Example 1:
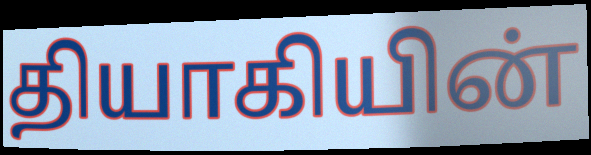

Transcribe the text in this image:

தியாகியின்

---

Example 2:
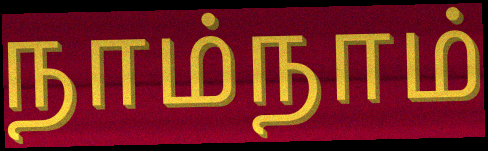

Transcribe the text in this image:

நாம்நாம்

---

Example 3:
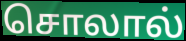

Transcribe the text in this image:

சொலால்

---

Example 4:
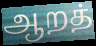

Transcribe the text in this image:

ஆறத்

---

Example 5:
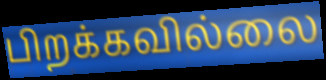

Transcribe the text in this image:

பிறக்கவில்லை